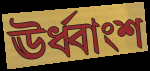
ঊর্ধ্বাংশ